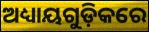
ଅଧ୍ୟାୟଗୁଡ଼ିକରେ